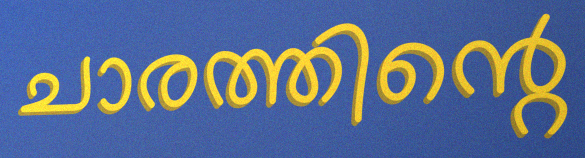
ചാരത്തിന്റെ